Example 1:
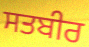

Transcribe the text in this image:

ਸਤਬੀਰ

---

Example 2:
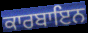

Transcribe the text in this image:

ਕਾਰਬਾਇਨ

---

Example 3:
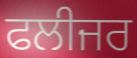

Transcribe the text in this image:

ਫਲੀਜਰ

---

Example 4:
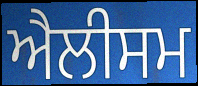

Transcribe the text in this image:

ਐਲੀਸਮ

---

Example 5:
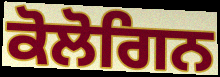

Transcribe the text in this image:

ਕੋਲੋਗਿਨ